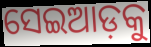
ସେଇଆଡ଼କୁ